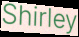
Shirley